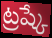
ట్రష్కే